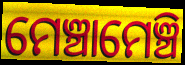
ମେଞ୍ଚାମେଞ୍ଚି